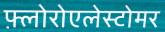
फ़्लोरोएलेस्टोमर